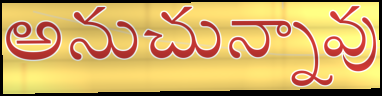
అనుచున్నావు